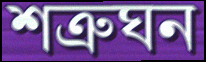
শত্ৰুঘন